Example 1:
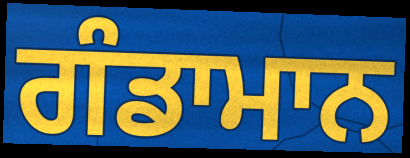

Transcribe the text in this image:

ਗੰਡਾਮਾਨ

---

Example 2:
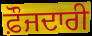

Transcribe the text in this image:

ਫ਼ੌਜਦਾਰੀ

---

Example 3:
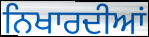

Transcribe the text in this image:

ਨਿਖਾਰਦੀਆਂ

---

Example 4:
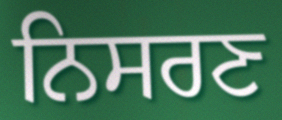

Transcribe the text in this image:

ਨਿਸਰਣ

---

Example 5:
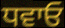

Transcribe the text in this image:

ਧਵਾਓ